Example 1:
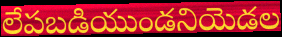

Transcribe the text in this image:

లేపబడియుండనియెడల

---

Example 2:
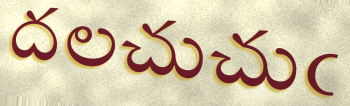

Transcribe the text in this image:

దలచుచుఁ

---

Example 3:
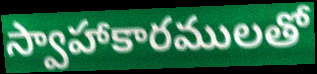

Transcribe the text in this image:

స్వాహాకారములతో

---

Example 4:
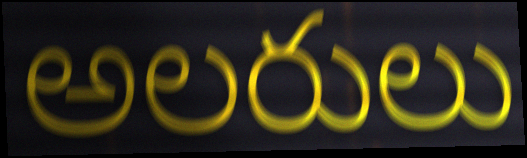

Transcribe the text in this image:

అలరులు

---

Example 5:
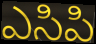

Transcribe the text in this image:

ఎసిపి